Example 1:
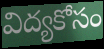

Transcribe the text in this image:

విద్యకోసం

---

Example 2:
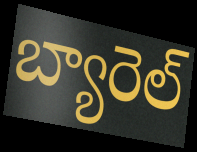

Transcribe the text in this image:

బ్యారెల్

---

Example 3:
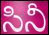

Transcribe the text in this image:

సినీ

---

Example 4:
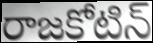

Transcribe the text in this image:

రాజకోటిన్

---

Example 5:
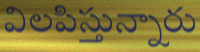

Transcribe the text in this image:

విలపిస్తున్నారు